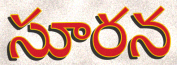
సూరన